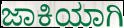
ಜಾಕಿಯಾಗಿ